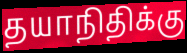
தயாநிதிக்கு